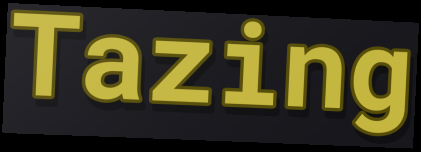
Tazing